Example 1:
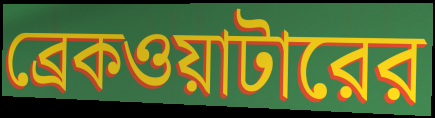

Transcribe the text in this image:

ব্রেকওয়াটারের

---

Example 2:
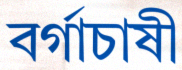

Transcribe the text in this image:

বর্গাচাষী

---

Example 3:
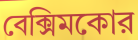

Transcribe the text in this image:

বেক্সিমকোর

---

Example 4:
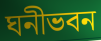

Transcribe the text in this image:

ঘনীভবন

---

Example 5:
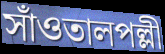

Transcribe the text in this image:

সাঁওতালপল্লী